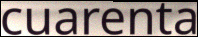
cuarenta